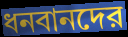
ধনবানদের